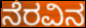
ನೆರವಿನ